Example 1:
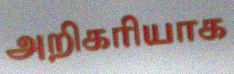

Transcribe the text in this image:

அறிகரியாக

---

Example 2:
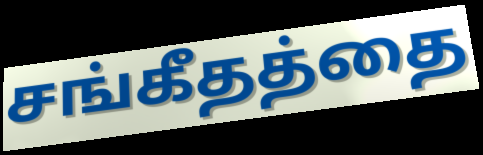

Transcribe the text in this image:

சங்கீதத்தை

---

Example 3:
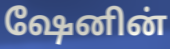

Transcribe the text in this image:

ஷேனின்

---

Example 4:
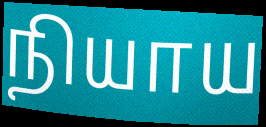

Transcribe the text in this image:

நியாய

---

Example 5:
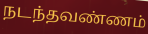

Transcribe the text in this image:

நடந்தவண்ணம்